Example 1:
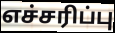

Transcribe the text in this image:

எச்சரிப்பு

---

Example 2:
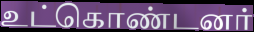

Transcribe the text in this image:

உட்கொண்டனர்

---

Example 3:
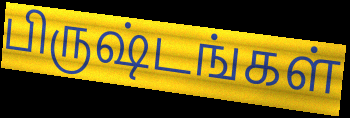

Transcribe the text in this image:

பிருஷ்டங்கள்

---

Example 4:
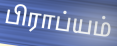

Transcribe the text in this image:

பிராப்யம்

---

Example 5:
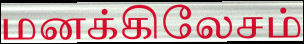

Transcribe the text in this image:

மனக்கிலேசம்